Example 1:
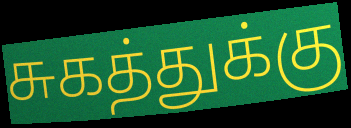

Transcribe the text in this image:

சுகத்துக்கு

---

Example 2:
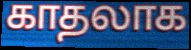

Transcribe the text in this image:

காதலாக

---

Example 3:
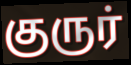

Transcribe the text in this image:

குருர்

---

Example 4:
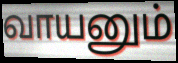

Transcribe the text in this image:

வாயனும்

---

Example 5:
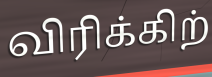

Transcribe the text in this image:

விரிக்கிற்